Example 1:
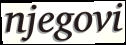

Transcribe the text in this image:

njegovi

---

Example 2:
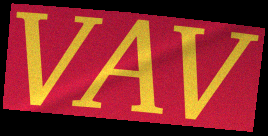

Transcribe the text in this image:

VAV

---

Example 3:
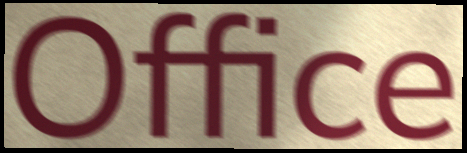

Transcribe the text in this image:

Office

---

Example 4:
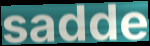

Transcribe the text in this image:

sadde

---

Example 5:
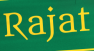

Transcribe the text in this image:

Rajat